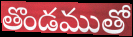
తొండముతో